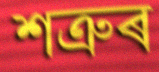
শত্ৰুৰ